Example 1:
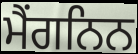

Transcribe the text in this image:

ਮੈਂਗਨਿਨ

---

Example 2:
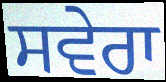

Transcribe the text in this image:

ਸਵੇਰਾ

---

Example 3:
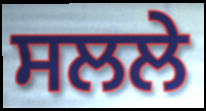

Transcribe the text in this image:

ਸਲਲੇ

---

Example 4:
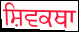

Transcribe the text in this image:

ਸ਼ਿਵਕਥਾ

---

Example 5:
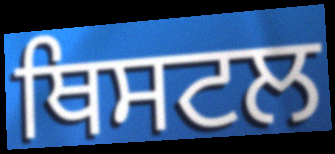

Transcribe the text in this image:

ਥਿਸਟਲ